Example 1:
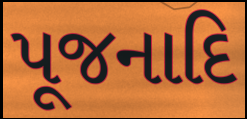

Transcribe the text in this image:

પૂજનાદિ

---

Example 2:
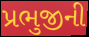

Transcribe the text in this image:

પ્રભુજીની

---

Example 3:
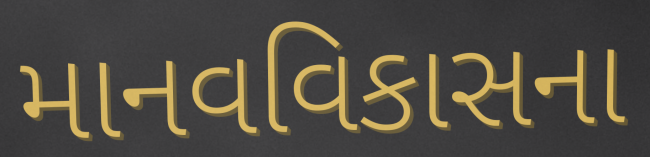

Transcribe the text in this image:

માનવવિકાસના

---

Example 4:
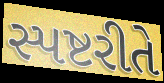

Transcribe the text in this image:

સ્પષ્ટરીતે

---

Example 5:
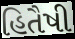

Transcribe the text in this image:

હિતૈષી